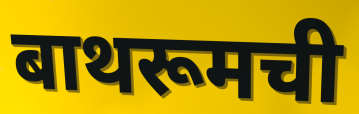
बाथरूमची